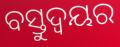
ବସ୍ତୁଦ୍ୱୟର